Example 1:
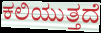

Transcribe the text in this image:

ಕಲಿಯುತ್ತದೆ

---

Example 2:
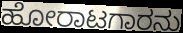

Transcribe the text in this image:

ಹೋರಾಟಗಾರನು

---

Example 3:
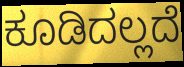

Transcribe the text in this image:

ಕೂಡಿದಲ್ಲದೆ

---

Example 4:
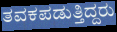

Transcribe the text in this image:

ತವಕಪಡುತ್ತಿದ್ದರು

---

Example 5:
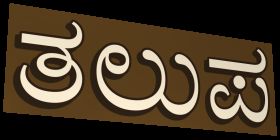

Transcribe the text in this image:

ತಲುಪ